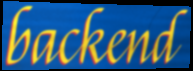
backend